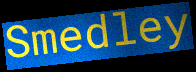
Smedley